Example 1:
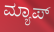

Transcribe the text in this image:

ಮ್ಯಾಪ್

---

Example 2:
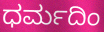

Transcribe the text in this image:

ಧರ್ಮದಿಂ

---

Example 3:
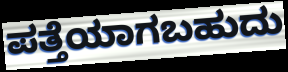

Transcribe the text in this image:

ಪತ್ತೆಯಾಗಬಹುದು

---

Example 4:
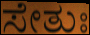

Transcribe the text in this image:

ಸೇತುಃ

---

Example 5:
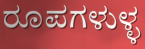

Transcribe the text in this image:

ರೂಪಗಳುಳ್ಳ